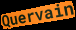
Quervain